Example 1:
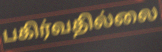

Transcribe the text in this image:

பகிர்வதில்லை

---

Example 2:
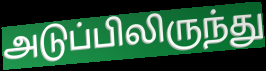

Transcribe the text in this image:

அடுப்பிலிருந்து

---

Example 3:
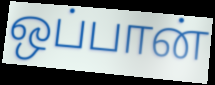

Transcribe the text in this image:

ஒப்பான்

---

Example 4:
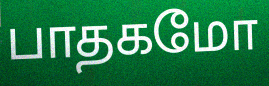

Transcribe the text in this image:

பாதகமோ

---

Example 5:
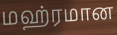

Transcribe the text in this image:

மஹ்ரமான